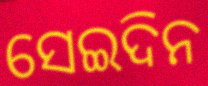
ସେଇଦିନ